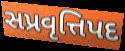
સપ્રવૃત્તિપદ